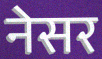
नेसर